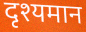
दृश्यमान